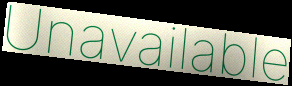
Unavailable